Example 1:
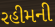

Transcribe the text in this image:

રહીમની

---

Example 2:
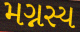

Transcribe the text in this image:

મગ્નસ્ય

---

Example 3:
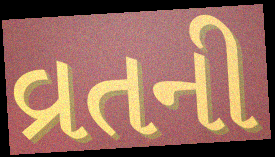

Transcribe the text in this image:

વ્રતની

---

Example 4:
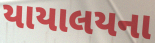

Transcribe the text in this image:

યાયાલયના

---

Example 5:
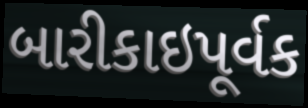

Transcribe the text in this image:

બારીકાઇપૂર્વક